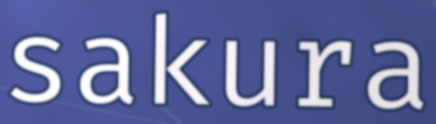
sakura